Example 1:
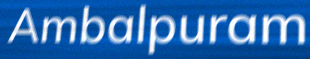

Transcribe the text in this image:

Ambalpuram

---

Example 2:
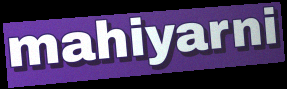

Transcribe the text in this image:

mahiyarni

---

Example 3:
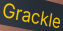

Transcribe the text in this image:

Grackle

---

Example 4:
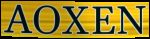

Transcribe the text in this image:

AOXEN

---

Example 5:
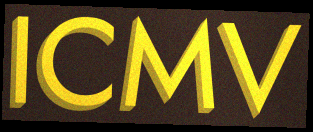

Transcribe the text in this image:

ICMV